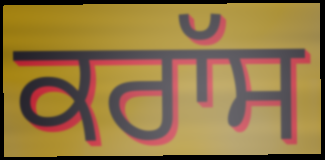
ਕਰਾੱਸ